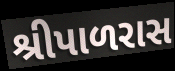
શ્રીપાળરાસ